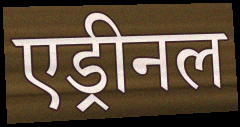
एड्रीनल